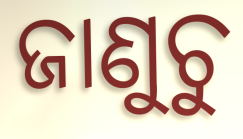
ଜାଣୁଚୁ